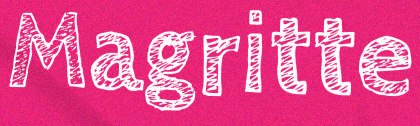
Magritte